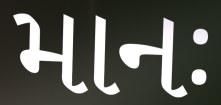
માનઃ